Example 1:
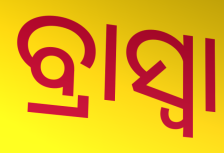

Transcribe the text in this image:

ବ୍ରାସ୍ବା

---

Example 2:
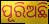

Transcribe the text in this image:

ପୂରିଅଛି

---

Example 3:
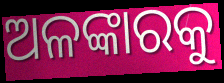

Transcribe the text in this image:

ଅଳଙ୍କାରକୁ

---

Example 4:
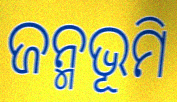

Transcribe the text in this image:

ଜନ୍ମଭୂମି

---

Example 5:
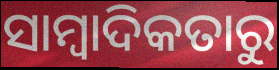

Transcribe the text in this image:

ସାମ୍ବାଦିକତାରୁ